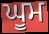
ਘੂਮ